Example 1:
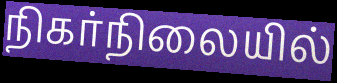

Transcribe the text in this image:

நிகர்நிலையில்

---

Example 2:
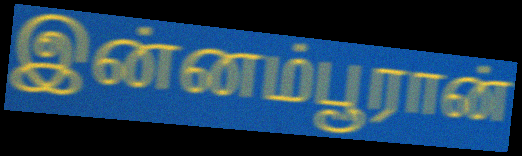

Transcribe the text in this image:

இன்னம்பூரான்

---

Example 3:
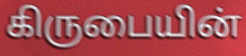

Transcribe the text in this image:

கிருபையின்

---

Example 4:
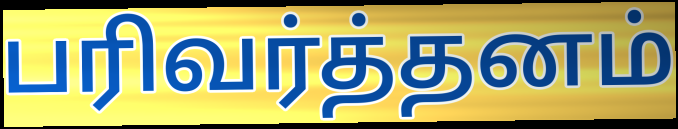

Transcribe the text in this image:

பரிவர்த்தனம்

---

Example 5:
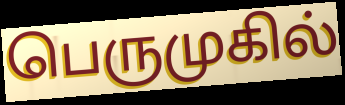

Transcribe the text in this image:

பெருமுகில்